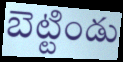
బెట్టిండు